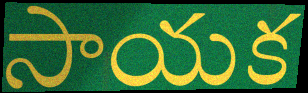
సాయక